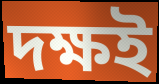
দক্ষই